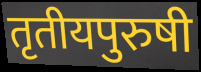
तृतीयपुरुषी